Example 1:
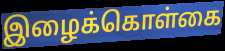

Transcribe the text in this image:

இழைக்கொள்கை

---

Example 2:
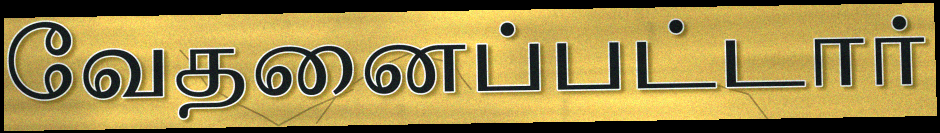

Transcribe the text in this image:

வேதனைப்பட்டார்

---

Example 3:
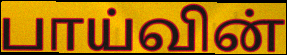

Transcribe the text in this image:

பாய்வின்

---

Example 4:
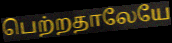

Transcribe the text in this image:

பெற்றதாலேயே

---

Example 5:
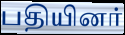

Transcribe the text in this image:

பதியினர்